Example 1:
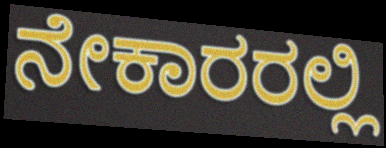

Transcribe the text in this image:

ನೇಕಾರರಲ್ಲಿ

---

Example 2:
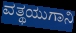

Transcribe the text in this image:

ವತ್ಥಯುಗಾನಿ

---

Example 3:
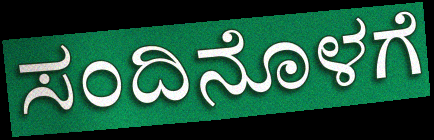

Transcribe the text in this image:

ಸಂದಿನೊಳಗೆ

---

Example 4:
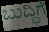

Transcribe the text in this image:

ಬುದ್ಧಿಗೆ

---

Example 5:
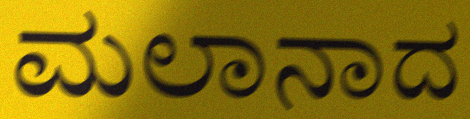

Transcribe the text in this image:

ಮಲಾನಾದ